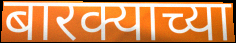
बारक्याच्या